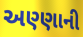
અણ્ણાની